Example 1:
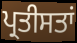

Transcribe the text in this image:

ਪ੍ਰਤੀਸਤਾਂ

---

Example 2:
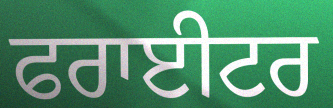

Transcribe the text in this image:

ਫਰਾਈਟਰ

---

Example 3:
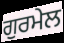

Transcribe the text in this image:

ਗੁਰਮੇਲ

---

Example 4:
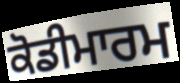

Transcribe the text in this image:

ਕੋਡੀਮਾਰਮ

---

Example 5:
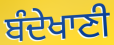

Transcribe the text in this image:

ਬੰਦੇਖਾਣੀ